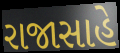
રાજાસાહે